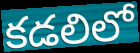
కడలిలో